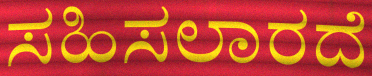
ಸಹಿಸಲಾರದೆ